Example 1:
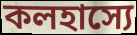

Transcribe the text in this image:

কলহাস্যে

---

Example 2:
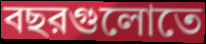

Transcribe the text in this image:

বছরগুলোতে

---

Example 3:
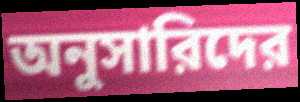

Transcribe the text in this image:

অনুসারিদের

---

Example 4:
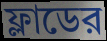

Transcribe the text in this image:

ফ্লাডের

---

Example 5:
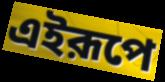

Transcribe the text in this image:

এইরূপে